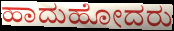
ಹಾದುಹೋದರು